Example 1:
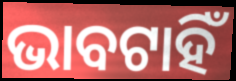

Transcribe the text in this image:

ଭାବଟାହିଁ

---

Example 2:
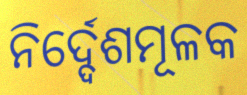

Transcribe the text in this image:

ନିର୍ଦ୍ଦେଶମୂଳକ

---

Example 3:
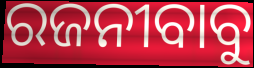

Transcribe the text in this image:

ରଜନୀବାବୁ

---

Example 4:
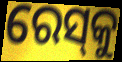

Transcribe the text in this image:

ରେସ୍‌କୁ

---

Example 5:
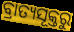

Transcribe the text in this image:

ବ୍ରାତ୍ୟସୂକ୍ତରୁ